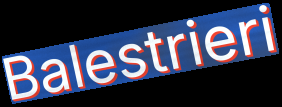
Balestrieri